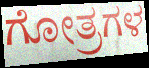
ಗೋತ್ರಗಳ